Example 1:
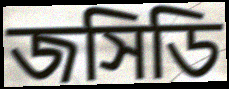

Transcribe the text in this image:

জসিডি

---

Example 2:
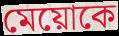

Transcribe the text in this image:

মেয়োকে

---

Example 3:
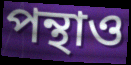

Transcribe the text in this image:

পন্থাও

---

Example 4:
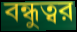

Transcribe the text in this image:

বন্ধুত্বর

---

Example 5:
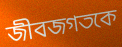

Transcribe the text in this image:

জীবজগতকে